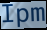
Ipm